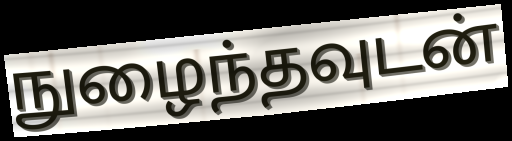
நுழைந்தவுடன்